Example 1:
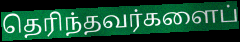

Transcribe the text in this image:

தெரிந்தவர்களைப்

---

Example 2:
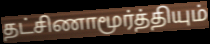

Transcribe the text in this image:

தட்சிணாமூர்த்தியும்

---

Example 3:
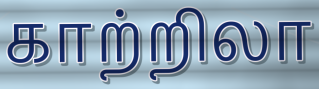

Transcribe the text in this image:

காற்றிலா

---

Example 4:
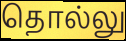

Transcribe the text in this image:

தொல்லு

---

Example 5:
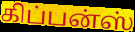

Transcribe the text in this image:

கிப்பன்ஸ்